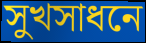
সুখসাধনে